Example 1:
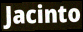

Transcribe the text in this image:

Jacinto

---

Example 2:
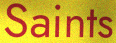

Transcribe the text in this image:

Saints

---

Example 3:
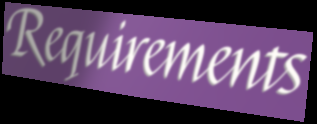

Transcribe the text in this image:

Requirements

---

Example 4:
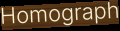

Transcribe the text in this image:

Homograph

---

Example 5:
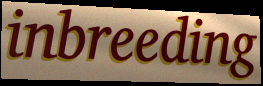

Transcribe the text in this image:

inbreeding